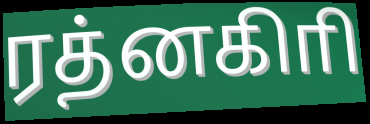
ரத்னகிரி